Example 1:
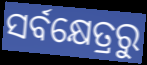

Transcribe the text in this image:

ସର୍ବକ୍ଷେତ୍ରରୁ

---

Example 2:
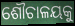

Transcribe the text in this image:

ଶୌଚାଳୟକୁ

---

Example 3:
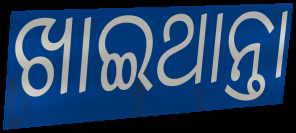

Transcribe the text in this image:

ଖାଇଥାନ୍ତା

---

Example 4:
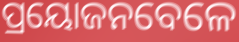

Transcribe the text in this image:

ପ୍ରୟୋଜନବେଳେ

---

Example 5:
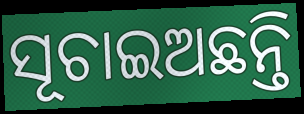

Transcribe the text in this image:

ସୂଚାଇଅଛନ୍ତି